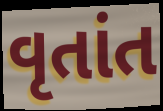
વૃતાંત